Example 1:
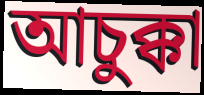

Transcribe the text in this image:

আচুক্কা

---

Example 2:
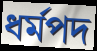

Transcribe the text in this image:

ধর্মপদ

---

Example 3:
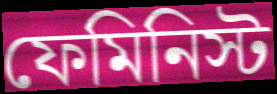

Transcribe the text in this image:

ফেমিনিস্ট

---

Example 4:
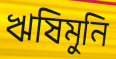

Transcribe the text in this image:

ঋষিমুনি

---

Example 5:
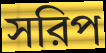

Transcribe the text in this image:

সরিপ